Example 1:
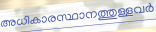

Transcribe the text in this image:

അധികാരസ്ഥാനത്തുള്ളവർ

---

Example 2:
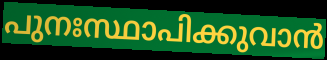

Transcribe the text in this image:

പുനഃസ്ഥാപിക്കുവാൻ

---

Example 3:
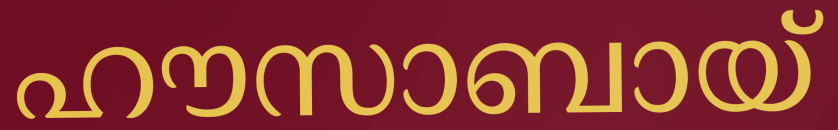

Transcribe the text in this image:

ഹൗസാബായ്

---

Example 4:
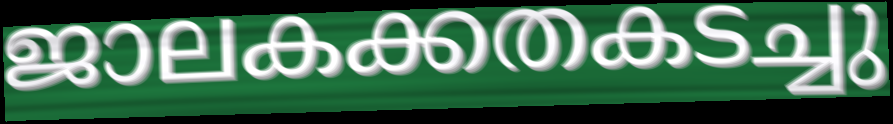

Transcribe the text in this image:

ജാലകക്കതകടച്ചു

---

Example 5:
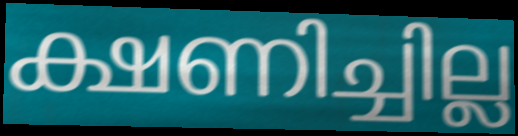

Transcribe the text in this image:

ക്ഷണിച്ചില്ല